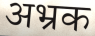
अभ्रक